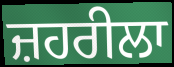
ਜ਼ਹਰੀਲਾ